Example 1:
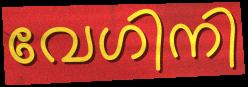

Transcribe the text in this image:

വേഗിനി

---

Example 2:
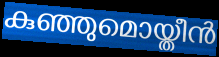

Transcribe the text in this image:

കുഞ്ഞുമൊയ്തീൻ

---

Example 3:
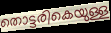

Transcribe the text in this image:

തൊട്ടരികെയുള്ള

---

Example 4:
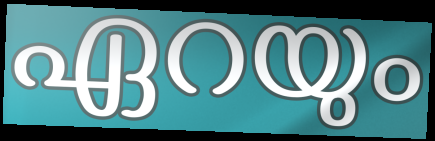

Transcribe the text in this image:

ഏറയും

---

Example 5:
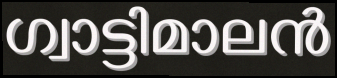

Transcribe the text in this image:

ഗ്വാട്ടിമാലൻ